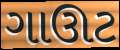
ગાઊટ